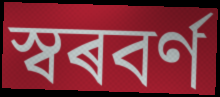
স্বৰবৰ্ণ